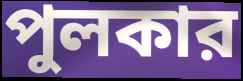
পুলকার